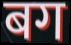
बग